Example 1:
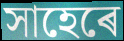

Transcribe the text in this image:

সাহেৰে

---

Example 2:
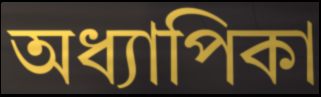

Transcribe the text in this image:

অধ্যাপিকা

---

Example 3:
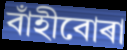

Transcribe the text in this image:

বাঁহীবোৰা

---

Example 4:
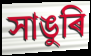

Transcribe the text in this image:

সাঙুৰি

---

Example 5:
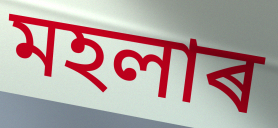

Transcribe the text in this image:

মহলাৰ